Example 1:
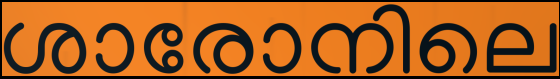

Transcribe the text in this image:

ശാരോനിലെ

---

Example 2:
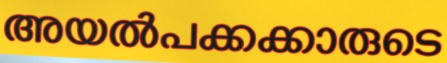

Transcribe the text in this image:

അയൽപക്കക്കാരുടെ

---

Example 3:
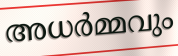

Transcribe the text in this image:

അധർമ്മവും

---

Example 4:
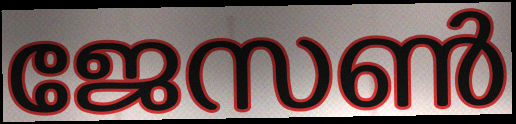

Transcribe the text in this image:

ജേസൺ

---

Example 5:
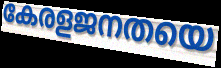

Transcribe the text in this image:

കേരളജനതയെ